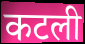
कटली